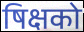
षिक्षको